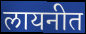
लायनीत